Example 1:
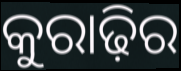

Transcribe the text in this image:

କୁରାଢ଼ିର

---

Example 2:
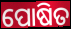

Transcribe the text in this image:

ପୋଷିତ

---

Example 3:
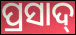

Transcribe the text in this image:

ପ୍ରସାଦ୍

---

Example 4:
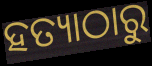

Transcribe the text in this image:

ହତ୍ୟାଠାରୁ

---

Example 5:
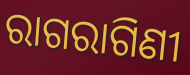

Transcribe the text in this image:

ରାଗରାଗିଣୀ